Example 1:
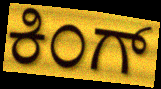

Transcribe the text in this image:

ಕಿಂಗ್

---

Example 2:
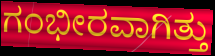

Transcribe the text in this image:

ಗಂಭೀರವಾಗಿತ್ತು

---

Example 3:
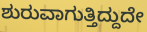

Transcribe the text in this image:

ಶುರುವಾಗುತ್ತಿದ್ದುದೇ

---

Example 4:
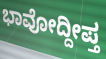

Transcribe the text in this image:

ಭಾವೋದ್ದೀಪ್ತ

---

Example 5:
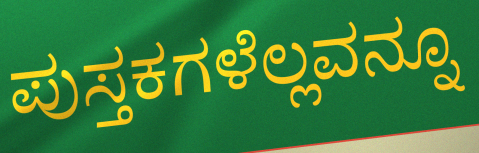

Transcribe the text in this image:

ಪುಸ್ತಕಗಳೆಲ್ಲವನ್ನೂ